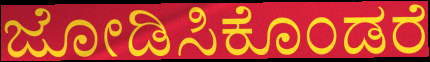
ಜೋಡಿಸಿಕೊಂಡರೆ